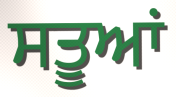
ਸਤੂਆਂ